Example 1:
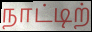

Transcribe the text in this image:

நாட்டிற்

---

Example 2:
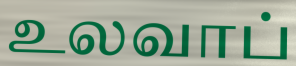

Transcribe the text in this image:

உலவாப்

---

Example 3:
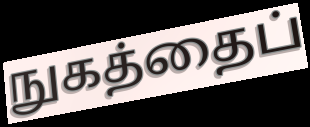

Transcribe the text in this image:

நுகத்தைப்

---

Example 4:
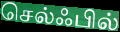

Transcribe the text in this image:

செல்ஃபில்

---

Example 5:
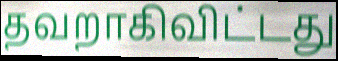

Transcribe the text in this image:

தவறாகிவிட்டது